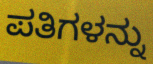
ಪತಿಗಳನ್ನು